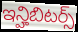
ఇన్హిబిటర్స్